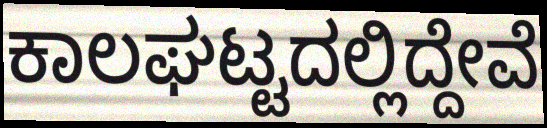
ಕಾಲಘಟ್ಟದಲ್ಲಿದ್ದೇವೆ